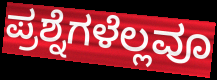
ಪ್ರಶ್ನೆಗಳೆಲ್ಲವೂ